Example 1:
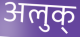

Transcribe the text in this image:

अलुक्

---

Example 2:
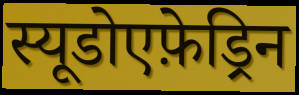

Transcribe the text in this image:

स्यूडोएफ़ेड्रिन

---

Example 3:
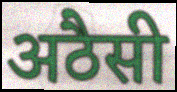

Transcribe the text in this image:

अठैसी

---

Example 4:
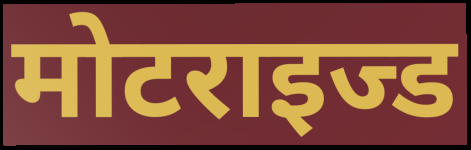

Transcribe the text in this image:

मोटराइज्ड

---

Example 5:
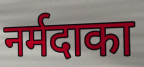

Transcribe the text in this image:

नर्मदाका